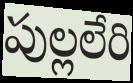
పుల్లలేరి